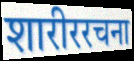
शारीररचना